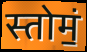
स्तोमं॒